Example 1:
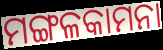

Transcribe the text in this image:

ମଙ୍ଗଳକାମନା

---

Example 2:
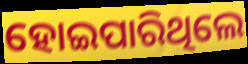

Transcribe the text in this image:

ହୋଇପାରିଥିଲେ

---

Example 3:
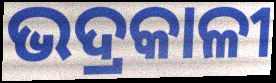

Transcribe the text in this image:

ଭଦ୍ରକାଳୀ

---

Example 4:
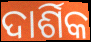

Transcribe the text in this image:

ଦାର୍ଶିକ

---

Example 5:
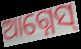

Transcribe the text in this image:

ଆଗ୍ନେସ୍